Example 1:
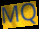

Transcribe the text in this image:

MQ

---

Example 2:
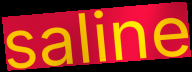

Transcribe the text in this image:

saline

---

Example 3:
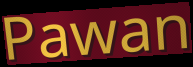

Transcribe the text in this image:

Pawan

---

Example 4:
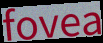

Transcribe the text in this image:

fovea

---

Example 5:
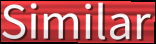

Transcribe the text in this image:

Similar